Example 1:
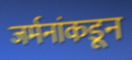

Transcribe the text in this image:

जर्मनांकडून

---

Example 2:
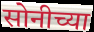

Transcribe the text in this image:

सोनीच्या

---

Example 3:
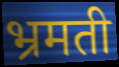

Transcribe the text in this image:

भ्रमती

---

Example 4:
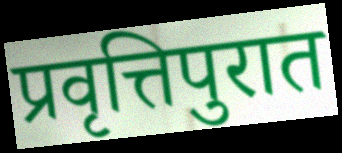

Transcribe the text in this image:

प्रवृत्तिपुरात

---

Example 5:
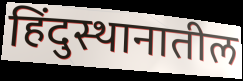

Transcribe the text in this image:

हिंदुस्थानातील